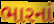
ભારનાં